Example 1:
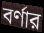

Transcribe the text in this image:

বর্ণার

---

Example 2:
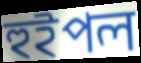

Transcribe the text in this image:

হুইপল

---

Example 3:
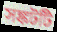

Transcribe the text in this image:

সঙ্কটটি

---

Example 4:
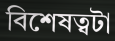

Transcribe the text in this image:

বিশেষত্বটা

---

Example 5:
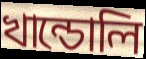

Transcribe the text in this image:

খান্ডোলি